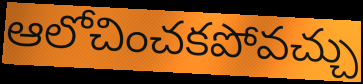
ఆలోచించకపోవచ్చు